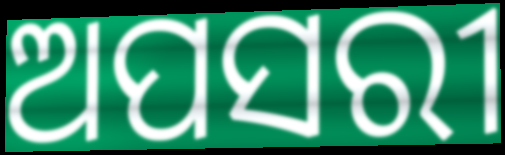
ଅପସରୀ